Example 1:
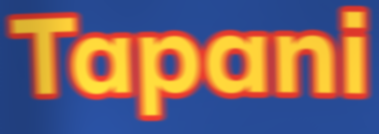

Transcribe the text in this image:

Tapani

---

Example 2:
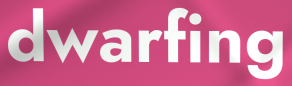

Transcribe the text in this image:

dwarfing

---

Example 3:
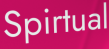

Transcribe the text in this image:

Spirtual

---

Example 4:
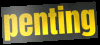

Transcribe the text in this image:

penting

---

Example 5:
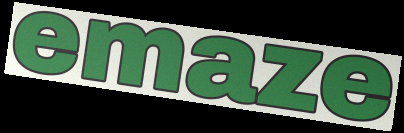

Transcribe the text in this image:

emaze